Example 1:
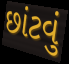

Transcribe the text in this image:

છાંટવું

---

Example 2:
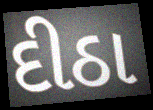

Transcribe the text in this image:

દીઠા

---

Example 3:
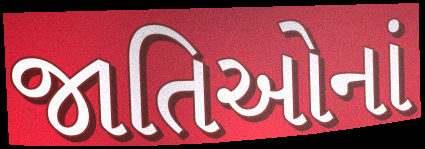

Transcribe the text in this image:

જાતિઓનાં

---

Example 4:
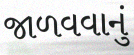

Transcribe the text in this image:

જાળવવાનું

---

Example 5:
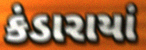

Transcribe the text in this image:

કંડારાયાં